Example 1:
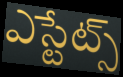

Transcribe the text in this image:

ఎస్టేట్స్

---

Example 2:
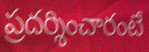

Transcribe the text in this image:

ప్రదర్శించారంటే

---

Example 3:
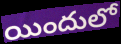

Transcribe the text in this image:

యిందులో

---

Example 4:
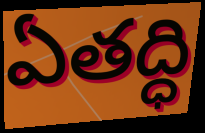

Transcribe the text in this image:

ఏతద్ధి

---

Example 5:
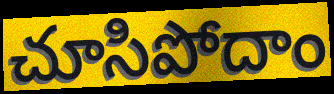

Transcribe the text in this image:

చూసిపోదాం